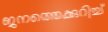
ജനത്തെക്കുറിച്ച്